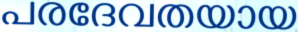
പരദേവതയായ